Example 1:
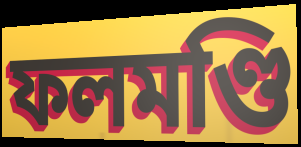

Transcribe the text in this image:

ফলমণ্ডি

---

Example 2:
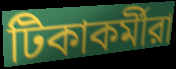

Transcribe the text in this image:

টিকাকর্মীরা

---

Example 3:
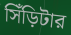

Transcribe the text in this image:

সিঁড়িটার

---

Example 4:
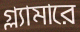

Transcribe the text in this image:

গ্ল্যামারে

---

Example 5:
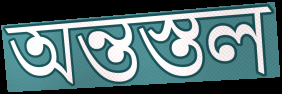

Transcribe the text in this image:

অন্তস্তল